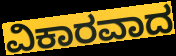
ವಿಕಾರವಾದ